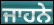
ਜਾਹਨੇ